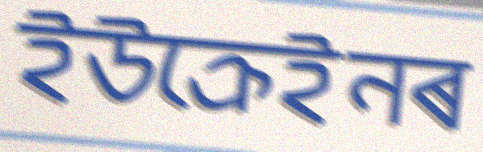
ইউক্ৰেইনৰ